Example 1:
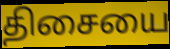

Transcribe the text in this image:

திசையை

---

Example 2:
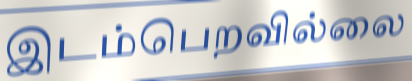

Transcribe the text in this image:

இடம்பெறவில்லை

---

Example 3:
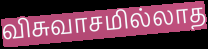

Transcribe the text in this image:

விசுவாசமில்லாத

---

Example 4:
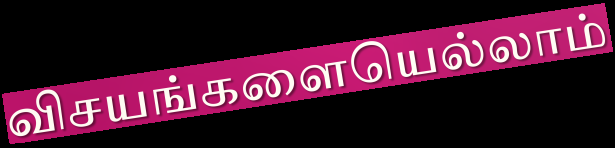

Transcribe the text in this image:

விசயங்களையெல்லாம்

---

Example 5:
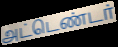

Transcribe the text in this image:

அட்டெண்டர்